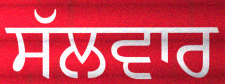
ਸੱਲਵਾਰ